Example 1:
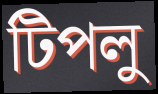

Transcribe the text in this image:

টিপলু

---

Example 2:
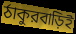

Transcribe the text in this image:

ঠাকুরবাড়িই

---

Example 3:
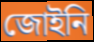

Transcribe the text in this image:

জোইনি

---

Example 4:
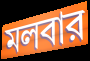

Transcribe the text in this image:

মলবার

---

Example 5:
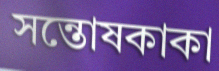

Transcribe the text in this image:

সন্তোষকাকা